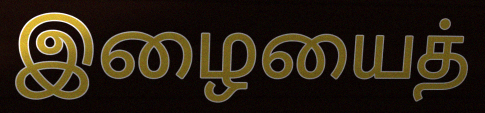
இழையைத்